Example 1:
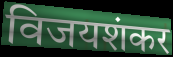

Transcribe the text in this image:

विजयशंकर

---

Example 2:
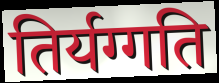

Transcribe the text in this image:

तिर्यग्गति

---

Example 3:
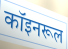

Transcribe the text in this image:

कॉइनरूल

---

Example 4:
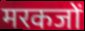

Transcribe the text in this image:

मरकजों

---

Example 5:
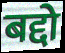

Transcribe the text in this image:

बद्दो